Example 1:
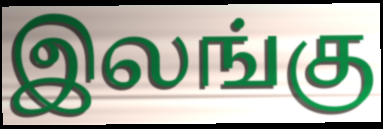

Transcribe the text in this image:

இலங்கு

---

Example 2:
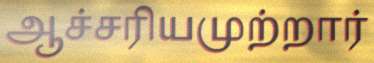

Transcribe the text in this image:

ஆச்சரியமுற்றார்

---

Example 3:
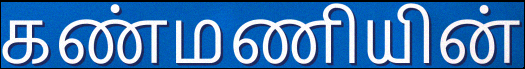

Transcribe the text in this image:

கண்மணியின்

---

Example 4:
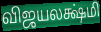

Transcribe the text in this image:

விஜயலக்ஷ்மி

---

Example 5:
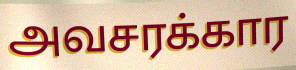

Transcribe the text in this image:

அவசரக்கார